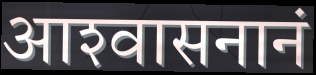
आश्वासनानं